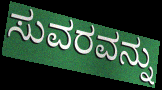
ಸುವರವನ್ನು